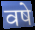
वषे